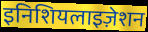
इनिशियलाइज़ेशन